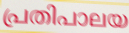
പ്രതിപാലയ